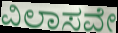
ವಿಲಾಸವೇ